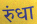
रुंधा